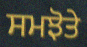
ਸਮਝੋਤੇ